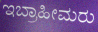
ಇಬ್ರಾಹೀಮರು